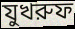
যুখরুফ